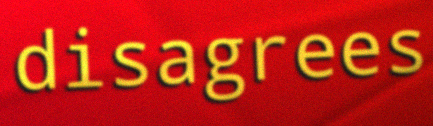
disagrees